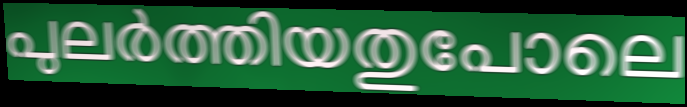
പുലർത്തിയതുപോലെ